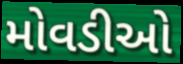
મોવડીઓ